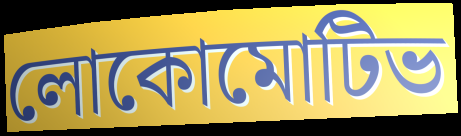
লোকোমোটিভ